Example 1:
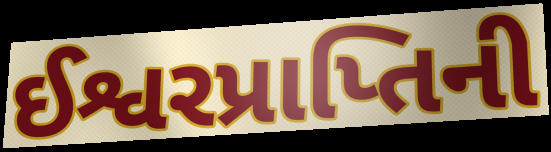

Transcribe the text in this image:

ઈશ્વરપ્રાપ્તિની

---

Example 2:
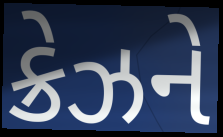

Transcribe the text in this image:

ક્રેઝને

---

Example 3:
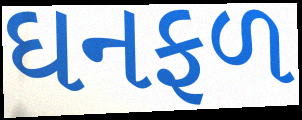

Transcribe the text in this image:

ઘનફળ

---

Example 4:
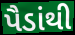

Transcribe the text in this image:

પૈડાંથી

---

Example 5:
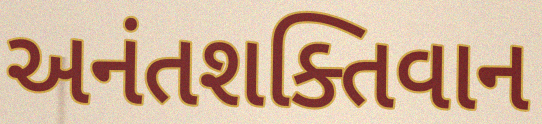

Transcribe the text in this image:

અનંતશક્તિવાન